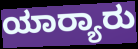
ಯಾರ‍್ಯಾರು